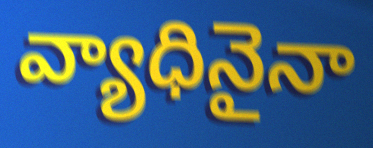
వ్యాధినైనా